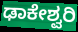
ಢಾಕೇಶ್ವರಿ